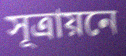
সূত্রায়নে